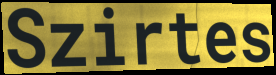
Szirtes